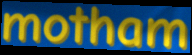
motham